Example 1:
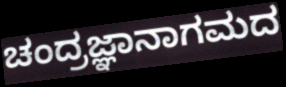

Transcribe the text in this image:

ಚಂದ್ರಜ್ಞಾನಾಗಮದ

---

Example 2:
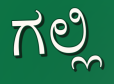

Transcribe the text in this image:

ಗಲ್ಲಿ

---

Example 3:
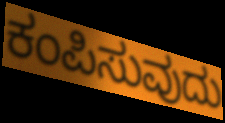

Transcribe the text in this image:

ಕಂಪಿಸುವುದು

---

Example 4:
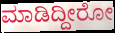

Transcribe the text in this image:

ಮಾಡಿದ್ದೀರೋ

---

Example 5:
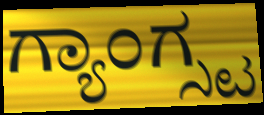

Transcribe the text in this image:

ಗ್ಯಾಂಗ್ಸ್ಟ